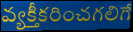
వ్యక్తీకరించగలిగే